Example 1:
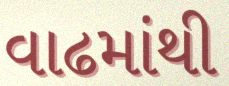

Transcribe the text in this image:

વાઢમાંથી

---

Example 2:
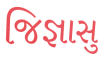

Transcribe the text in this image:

જિજ્ઞાસુ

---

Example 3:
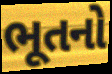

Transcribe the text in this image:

ભૂતનો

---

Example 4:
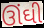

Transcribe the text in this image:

ઊંઘી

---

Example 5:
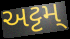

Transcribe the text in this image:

અટ્ટમ્